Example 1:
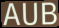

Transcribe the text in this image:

AUB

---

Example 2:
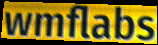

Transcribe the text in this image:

wmflabs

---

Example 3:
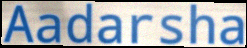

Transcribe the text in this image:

Aadarsha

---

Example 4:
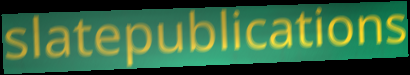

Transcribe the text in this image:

slatepublications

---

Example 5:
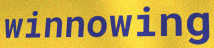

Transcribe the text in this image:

winnowing